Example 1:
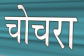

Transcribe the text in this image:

चोचरा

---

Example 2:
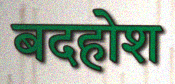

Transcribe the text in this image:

बदहोश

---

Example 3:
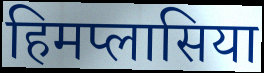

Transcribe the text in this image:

हिमप्लासिया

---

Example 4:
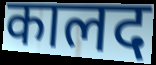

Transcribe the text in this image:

कालद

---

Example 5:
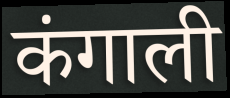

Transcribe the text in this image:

कंगाली